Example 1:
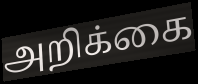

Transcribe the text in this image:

அறிக்கை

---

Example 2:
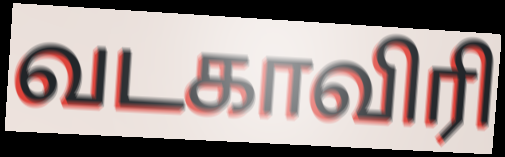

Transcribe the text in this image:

வடகாவிரி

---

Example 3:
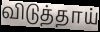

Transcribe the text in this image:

விடுத்தாய்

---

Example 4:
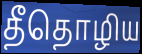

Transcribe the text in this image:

தீதொழிய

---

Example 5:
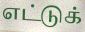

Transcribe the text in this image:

எட்டுக்